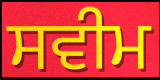
ਸਵੀਮ